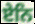
ਏਨਿ